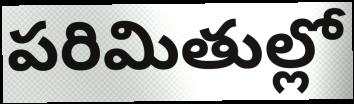
పరిమితుల్లో